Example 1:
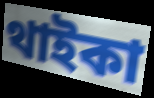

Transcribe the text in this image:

থাইকা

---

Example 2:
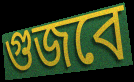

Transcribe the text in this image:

গুজবে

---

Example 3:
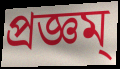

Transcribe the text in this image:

প্রজ্ঞম্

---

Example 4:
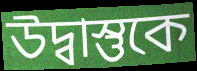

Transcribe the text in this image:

উদ্বাস্তুকে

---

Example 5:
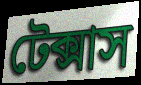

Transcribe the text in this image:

টেক্সাস